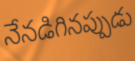
నేనడిగినప్పుడు